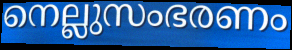
നെല്ലുസംഭരണം